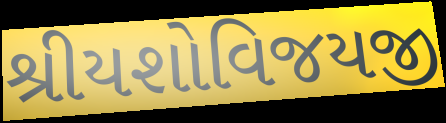
શ્રીયશોવિજયજી